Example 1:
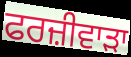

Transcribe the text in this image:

ਫਰਜ਼ੀਵਾੜਾ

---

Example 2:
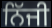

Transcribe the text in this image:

ਨਿੱਜੀ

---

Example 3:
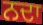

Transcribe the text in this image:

ਨਦਾ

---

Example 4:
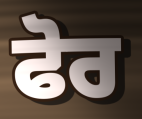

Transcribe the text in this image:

ਫੋਰ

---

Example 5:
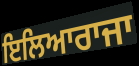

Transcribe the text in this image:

ਇਲਿਆਰਾਜਾ